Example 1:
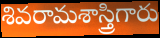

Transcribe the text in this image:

శివరామశాస్త్రిగారు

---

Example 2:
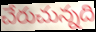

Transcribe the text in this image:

చేరుచున్నది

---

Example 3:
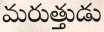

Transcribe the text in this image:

మరుత్తుడు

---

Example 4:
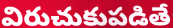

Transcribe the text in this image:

విరుచుకుపడితే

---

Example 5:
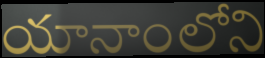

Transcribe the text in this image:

యానాంలోని